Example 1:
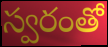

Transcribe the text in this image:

స్వరంతో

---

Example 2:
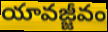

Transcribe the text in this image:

యావజ్జీవం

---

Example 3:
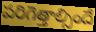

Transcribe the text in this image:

పరిగెత్తాల్సిందే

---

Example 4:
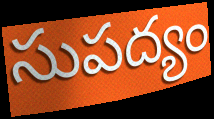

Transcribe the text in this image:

సుపద్యం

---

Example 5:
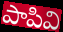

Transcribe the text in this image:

పాపివి